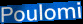
Poulomi